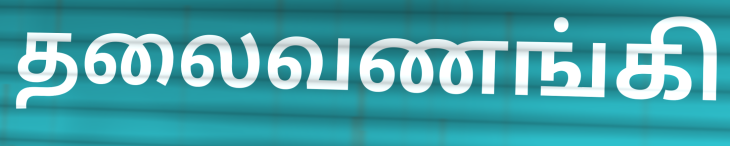
தலைவணங்கி